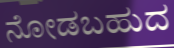
ನೋಡಬಹುದ